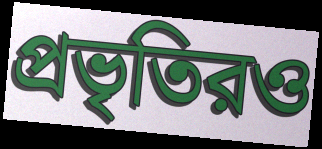
প্রভৃতিরও